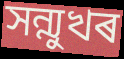
সন্মুখৰ